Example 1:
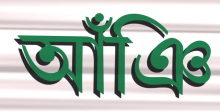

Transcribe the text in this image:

আঁঞি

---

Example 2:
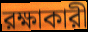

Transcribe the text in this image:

রক্ষাকারী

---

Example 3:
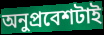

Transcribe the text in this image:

অনুপ্রবেশটাই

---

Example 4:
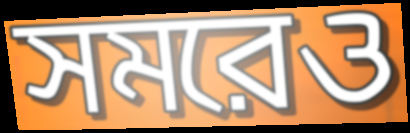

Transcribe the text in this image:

সমরেও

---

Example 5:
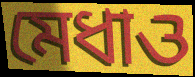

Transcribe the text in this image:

মেধাও